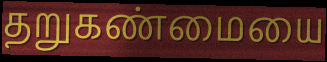
தறுகண்மையை